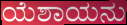
ಯೆಶಾಯನು